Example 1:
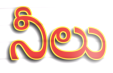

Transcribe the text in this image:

నీలు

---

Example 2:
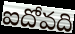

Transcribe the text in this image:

ఐదోవది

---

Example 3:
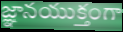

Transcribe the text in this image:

జ్ఞానయుక్తంగా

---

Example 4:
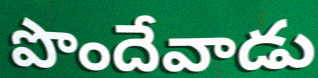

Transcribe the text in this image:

పొందేవాడు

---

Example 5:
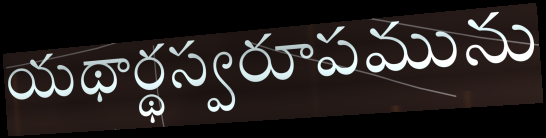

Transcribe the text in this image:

యథార్థస్వరూపమును